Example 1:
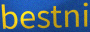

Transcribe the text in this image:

bestni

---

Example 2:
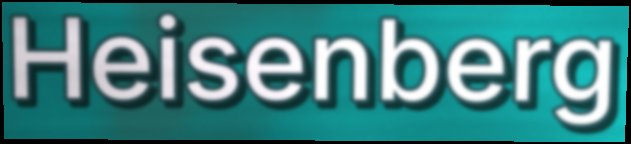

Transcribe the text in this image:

Heisenberg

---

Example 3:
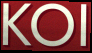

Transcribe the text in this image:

KOI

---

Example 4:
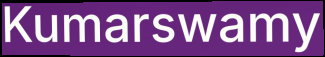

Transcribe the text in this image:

Kumarswamy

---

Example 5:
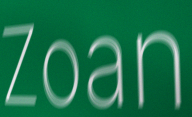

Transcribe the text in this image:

Zoan